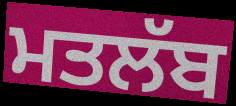
ਮਤਲੱਬ